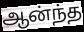
ஆன்ந்த